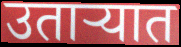
उताऱ्यात